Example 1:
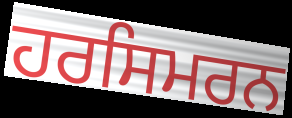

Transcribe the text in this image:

ਹਰਸਿਮਰਨ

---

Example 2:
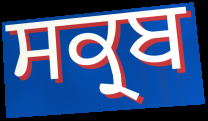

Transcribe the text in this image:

ਸਕ੍ਰਬ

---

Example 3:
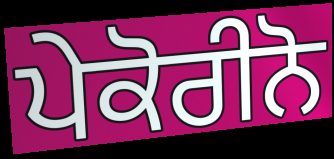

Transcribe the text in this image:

ਪੇਕੋਰੀਨੋ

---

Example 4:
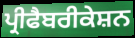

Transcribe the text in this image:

ਪ੍ਰੀਫੈਬਰੀਕੇਸ਼ਨ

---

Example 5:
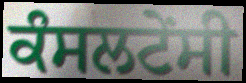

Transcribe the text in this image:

ਕੰਸਲਟੇਂਸੀ